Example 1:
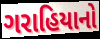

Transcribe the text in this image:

ગરાહિયાનો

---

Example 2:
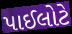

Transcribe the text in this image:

પાઈલોટે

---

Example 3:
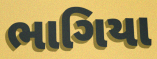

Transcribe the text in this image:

ભાગિયા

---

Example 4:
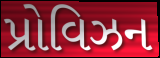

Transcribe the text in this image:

પ્રોવિઝન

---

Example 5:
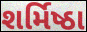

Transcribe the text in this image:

શર્મિષ્ઠા